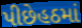
પીછેહઠમાં